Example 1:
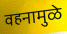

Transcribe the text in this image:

वहनामुळे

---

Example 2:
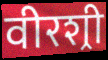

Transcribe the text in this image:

वीरश्री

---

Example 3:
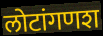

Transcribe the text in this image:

लोटांगणश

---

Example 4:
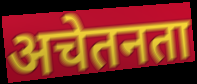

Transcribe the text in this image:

अचेतनता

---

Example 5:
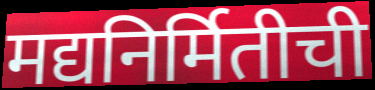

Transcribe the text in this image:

मद्यनिर्मितीची